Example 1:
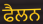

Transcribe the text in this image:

ਫੈਲਨ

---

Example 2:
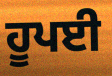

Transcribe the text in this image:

ਹੂਪਈ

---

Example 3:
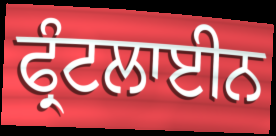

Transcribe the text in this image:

ਫ੍ਰੰਟਲਾਈਨ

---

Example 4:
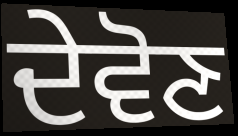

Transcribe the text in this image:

ਦੇਵੋਣ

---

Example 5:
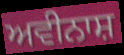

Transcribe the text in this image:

ਅਵੀਨਾਸ਼